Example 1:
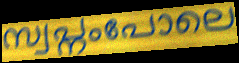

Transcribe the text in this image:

സ്വപ്നംപോലെ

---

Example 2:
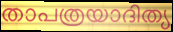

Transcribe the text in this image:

താപത്രയാദിത്യ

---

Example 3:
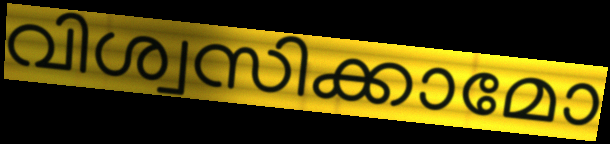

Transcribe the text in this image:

വിശ്വസിക്കാമോ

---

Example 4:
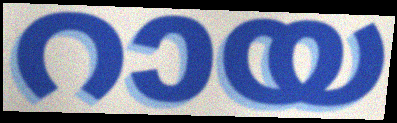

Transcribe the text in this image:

റായ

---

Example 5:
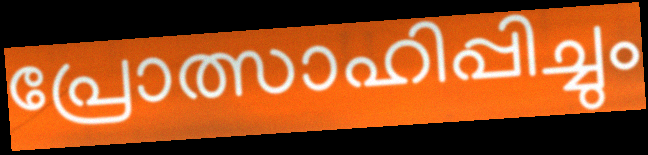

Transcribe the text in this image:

പ്രോത്സാഹിപ്പിച്ചും